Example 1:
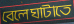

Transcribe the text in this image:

বেলেঘাটাতে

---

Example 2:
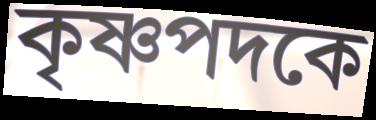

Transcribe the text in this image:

কৃষ্ণপদকে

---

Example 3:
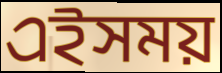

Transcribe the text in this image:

এইসময়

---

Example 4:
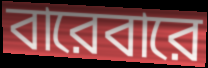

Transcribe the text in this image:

বারেবারে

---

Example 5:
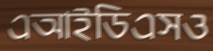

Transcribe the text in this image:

এআইডিএসও